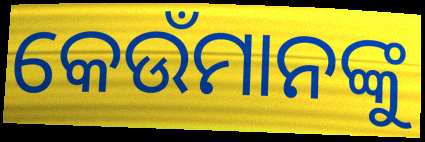
କେଉଁମାନଙ୍କୁ